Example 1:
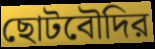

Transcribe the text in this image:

ছোটবৌদির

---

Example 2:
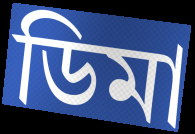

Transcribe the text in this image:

ডিমা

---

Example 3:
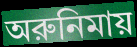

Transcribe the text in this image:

অরুনিমায়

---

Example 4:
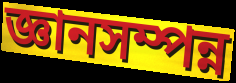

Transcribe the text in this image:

জ্ঞানসম্পন্ন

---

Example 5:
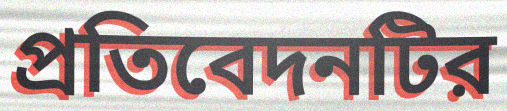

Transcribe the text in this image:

প্রতিবেদনটির